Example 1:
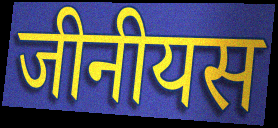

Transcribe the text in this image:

जीनीयस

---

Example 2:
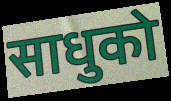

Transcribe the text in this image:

साधुको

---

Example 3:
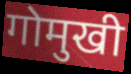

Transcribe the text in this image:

गोमुखी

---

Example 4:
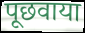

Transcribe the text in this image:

पूछवाया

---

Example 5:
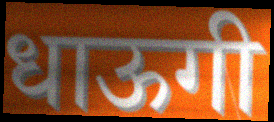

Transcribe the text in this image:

धाऊगी